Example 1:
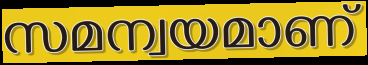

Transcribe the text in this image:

സമന്വയമാണ്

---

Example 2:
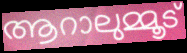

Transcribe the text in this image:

ആറാലുമ്മൂട്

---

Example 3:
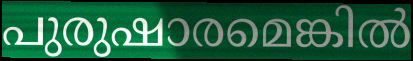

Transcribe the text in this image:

പുരുഷാരമെങ്കിൽ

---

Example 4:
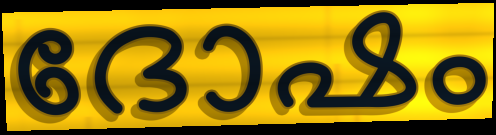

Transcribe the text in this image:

ദോഷം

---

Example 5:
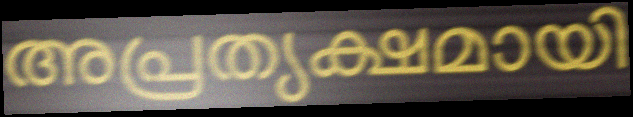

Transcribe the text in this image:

അപ്രത്യക്ഷമായി